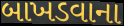
બાખડવાના